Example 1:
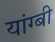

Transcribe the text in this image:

यांग्बी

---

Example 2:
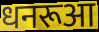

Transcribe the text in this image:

धनरूआ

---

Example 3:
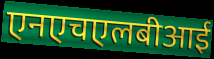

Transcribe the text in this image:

एनएचएलबीआई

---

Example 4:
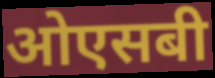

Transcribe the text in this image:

ओएसबी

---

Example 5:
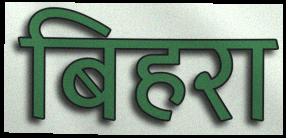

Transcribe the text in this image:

बिहरा